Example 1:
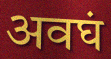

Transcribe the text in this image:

अवघं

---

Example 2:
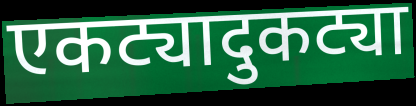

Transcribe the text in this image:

एकट्यादुकट्या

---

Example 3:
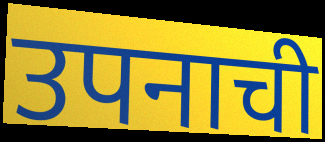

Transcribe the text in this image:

उपनाची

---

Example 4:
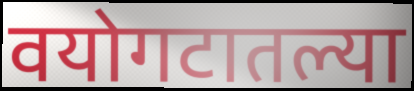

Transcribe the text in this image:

वयोगटातल्या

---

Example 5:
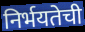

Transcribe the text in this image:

निर्भयतेची